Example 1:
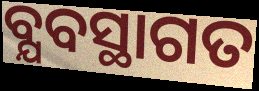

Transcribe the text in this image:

ବ୍ଯବସ୍ଥାଗତ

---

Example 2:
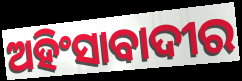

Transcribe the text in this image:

ଅହିଂସାବାଦୀର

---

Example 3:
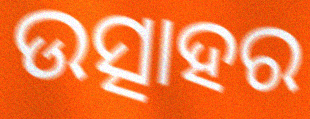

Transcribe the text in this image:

ଉତ୍ସାହର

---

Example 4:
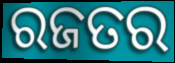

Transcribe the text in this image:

ରଜତର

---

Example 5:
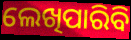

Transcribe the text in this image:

ଲେଖିପାରିବି